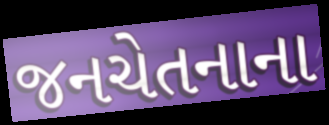
જનચેતનાના